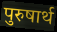
पुरुषार्थ